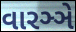
વારઞ્ઞે